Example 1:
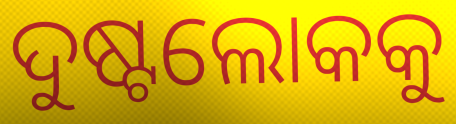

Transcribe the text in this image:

ଦୁଷ୍ଟଲୋକକୁ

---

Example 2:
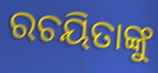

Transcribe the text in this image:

ରଚୟିତାଙ୍କୁ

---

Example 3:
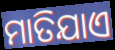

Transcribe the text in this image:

ମାତିଯାଏ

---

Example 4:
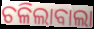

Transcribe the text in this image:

ଚଳିଲାବାଲା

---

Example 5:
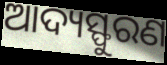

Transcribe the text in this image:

ଆଦ୍ୟସ୍ଫୁରଣ